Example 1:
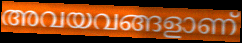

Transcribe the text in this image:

അവയവങ്ങളാണ്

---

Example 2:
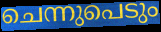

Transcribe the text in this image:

ചെന്നുപെടും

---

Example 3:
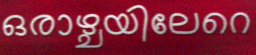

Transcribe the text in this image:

ഒരാഴ്ചയിലേറെ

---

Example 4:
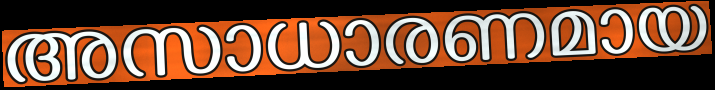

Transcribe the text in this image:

അസാധാരണമായ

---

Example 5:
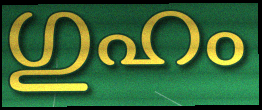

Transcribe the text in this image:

ഗുഹം